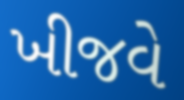
ખીજવે